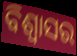
ବିଶ୍ବାସର